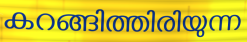
കറങ്ങിത്തിരിയുന്ന